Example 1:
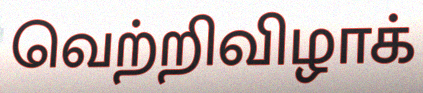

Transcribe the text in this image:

வெற்றிவிழாக்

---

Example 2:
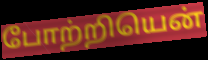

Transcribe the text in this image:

போற்றியென்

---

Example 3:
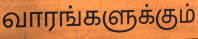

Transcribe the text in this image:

வாரங்களுக்கும்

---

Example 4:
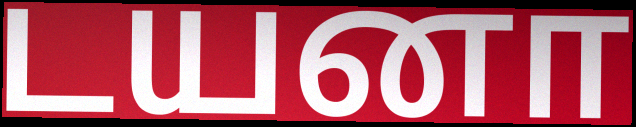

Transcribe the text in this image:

டயனா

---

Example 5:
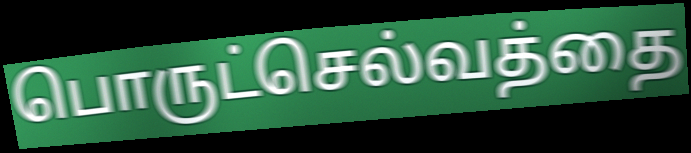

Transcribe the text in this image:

பொருட்செல்வத்தை